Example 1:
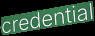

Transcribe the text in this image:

credential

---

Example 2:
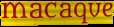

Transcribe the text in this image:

macaque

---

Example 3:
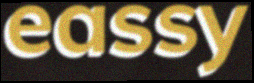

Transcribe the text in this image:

eassy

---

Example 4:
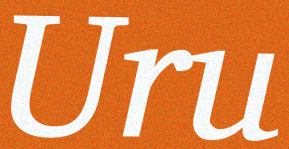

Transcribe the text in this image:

Uru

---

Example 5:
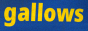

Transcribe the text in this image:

gallows